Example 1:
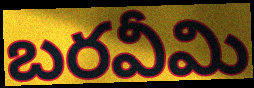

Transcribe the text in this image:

బరవీమి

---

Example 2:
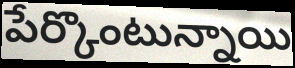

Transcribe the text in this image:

పేర్కొంటున్నాయి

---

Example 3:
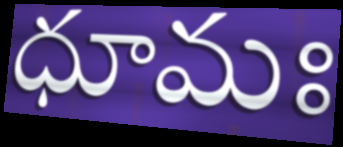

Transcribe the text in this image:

ధూమః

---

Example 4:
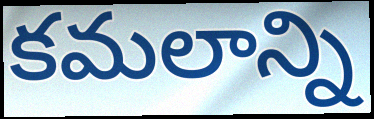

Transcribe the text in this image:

కమలాన్ని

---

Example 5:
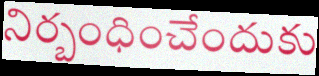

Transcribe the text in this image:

నిర్బంధించేందుకు